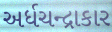
અર્ધચન્દ્રાકાર